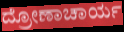
ದ್ರೋಣಾಚಾರ್ಯ